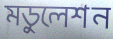
মডুলেশন